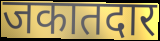
जकातदार